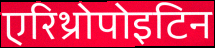
एरिथ्रोपोइटिन